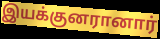
இயக்குனரானார்